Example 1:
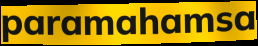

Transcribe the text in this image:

paramahamsa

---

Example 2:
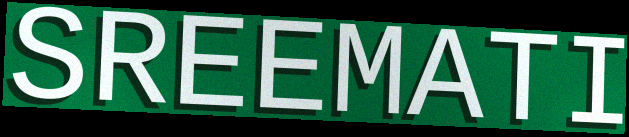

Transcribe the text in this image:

SREEMATI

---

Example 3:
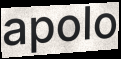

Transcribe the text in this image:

apolo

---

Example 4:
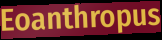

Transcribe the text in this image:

Eoanthropus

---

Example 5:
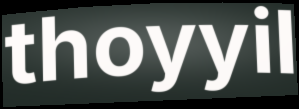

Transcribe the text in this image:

thoyyil